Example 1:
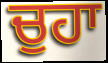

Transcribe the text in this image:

ਚੁਹਾ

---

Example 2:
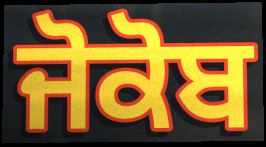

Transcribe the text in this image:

ਜੋਕੋਬ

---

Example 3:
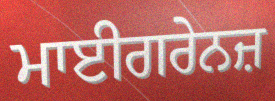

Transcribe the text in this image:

ਮਾਈਗਰੇਨਜ਼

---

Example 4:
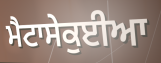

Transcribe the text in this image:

ਮੈਟਾਸੇਕੁਈਆ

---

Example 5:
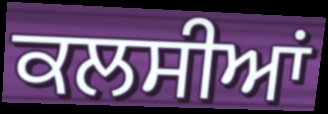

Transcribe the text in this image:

ਕਲਸੀਆਂ